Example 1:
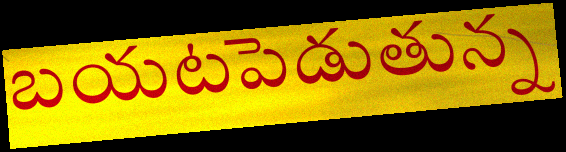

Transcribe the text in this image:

బయటపెడుతున్న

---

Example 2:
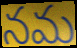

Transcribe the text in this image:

నమ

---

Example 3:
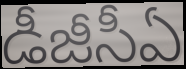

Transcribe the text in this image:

డీజీసీఏ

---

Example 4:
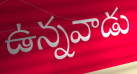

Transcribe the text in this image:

ఉన్నవాడు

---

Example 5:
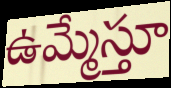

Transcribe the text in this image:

ఉమ్మేస్తూ